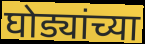
घोड्यांच्या